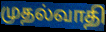
முதல்வாதி